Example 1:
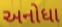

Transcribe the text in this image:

અનોધા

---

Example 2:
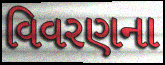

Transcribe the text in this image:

વિવરણના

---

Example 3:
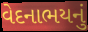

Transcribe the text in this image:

વેદનાભયનું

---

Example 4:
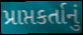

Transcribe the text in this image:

પ્રાપ્તકર્તાનું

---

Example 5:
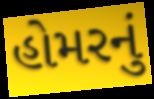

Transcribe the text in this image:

હોમરનું